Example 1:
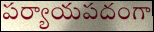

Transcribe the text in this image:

పర్యాయపదంగా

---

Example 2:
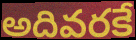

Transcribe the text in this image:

అదివరకే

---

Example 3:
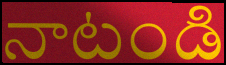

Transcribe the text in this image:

నాటండి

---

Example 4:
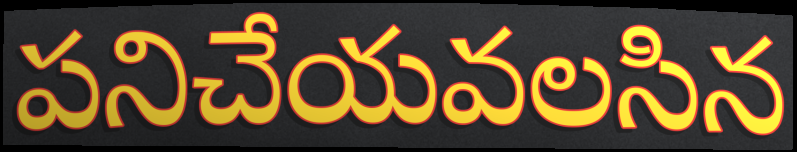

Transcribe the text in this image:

పనిచేయవలసిన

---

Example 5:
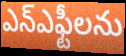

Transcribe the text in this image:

ఎన్ఎఫ్టీలను